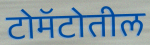
टोमॅटोतील